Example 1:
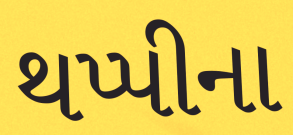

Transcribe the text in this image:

થપ્પીના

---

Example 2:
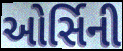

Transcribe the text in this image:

ઓર્સિની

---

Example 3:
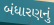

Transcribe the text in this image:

બંધારણનું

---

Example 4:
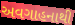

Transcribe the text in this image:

અવગાહનાથી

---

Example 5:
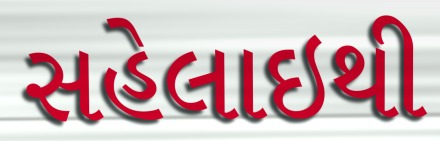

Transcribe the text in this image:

સહેલાઇથી